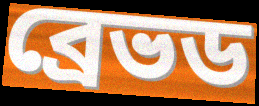
ব্রেভড